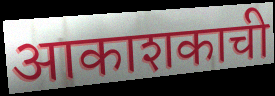
आकाशकाची